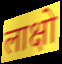
लाक्षो